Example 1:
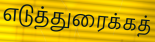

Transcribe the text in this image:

எடுத்துரைக்கத்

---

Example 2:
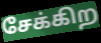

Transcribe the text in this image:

சேக்கிற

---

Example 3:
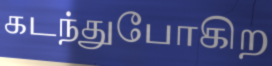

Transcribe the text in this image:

கடந்துபோகிற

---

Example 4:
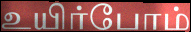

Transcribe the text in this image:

உயிர்போம்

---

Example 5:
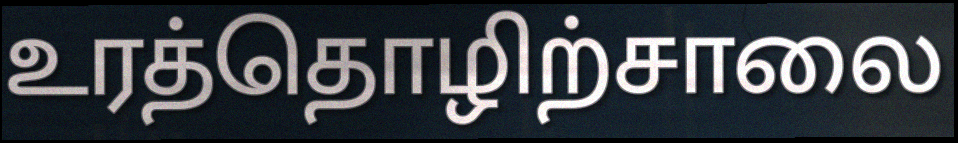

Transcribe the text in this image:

உரத்தொழிற்சாலை